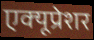
एक्यूप्रेशर